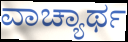
ವಾಚ್ಯಾರ್ಥ